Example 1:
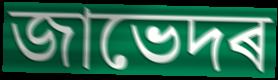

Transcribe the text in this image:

জাভেদৰ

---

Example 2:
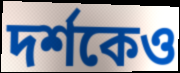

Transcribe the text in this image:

দৰ্শকেও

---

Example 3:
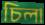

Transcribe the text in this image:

চিলা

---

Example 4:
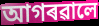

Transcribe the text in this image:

আগৰৱালে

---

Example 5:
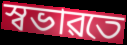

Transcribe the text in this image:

স্বভাৱতে